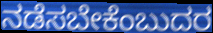
ನಡೆಸಬೇಕೆಂಬುದರ